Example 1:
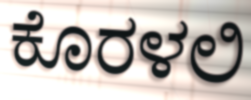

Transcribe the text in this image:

ಕೊರಳಲಿ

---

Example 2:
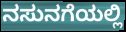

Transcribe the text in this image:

ನಸುನಗೆಯಲ್ಲಿ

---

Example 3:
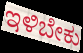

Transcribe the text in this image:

ಇಳಿಬೇಕು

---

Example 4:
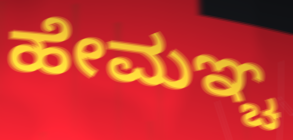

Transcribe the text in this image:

ಹೇಮಞ್ಚ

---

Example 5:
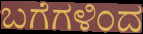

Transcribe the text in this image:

ಬಗೆಗಳಿಂದ